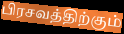
பிரசவத்திற்கும்